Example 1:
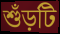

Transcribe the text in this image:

শুঁড়টি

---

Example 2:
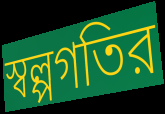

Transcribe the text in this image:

স্বল্পগতির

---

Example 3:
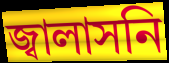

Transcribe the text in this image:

জ্বালাসনি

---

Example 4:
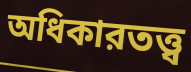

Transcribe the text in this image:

অধিকারতত্ত্ব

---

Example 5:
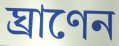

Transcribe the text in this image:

ঘ্রাণেন